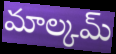
మాల్కమ్